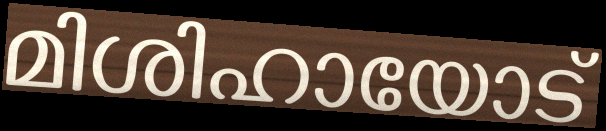
മിശിഹായോട്